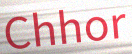
Chhor